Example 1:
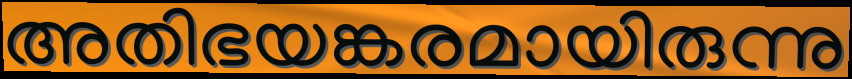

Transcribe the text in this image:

അതിഭയങ്കരമായിരുന്നു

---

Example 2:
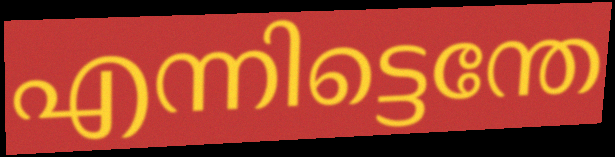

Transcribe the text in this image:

എന്നിട്ടെന്തേ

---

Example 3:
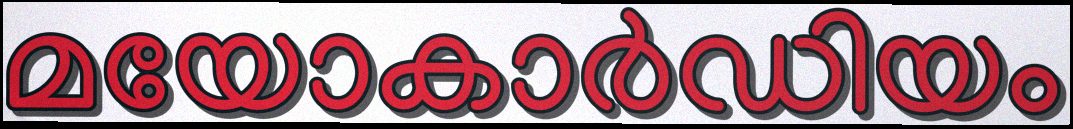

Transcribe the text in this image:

മയോകാർഡിയം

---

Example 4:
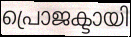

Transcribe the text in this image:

പ്രൊജക്ടായി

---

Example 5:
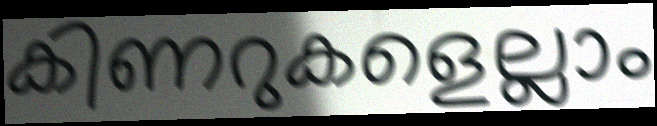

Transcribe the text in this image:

കിണറുകളെല്ലാം